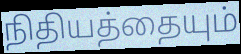
நிதியத்தையும்